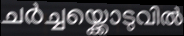
ചർച്ചയ്ക്കൊടുവിൽ